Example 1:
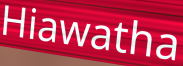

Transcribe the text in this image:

Hiawatha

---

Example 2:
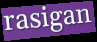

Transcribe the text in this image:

rasigan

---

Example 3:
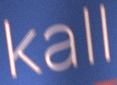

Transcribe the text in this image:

kall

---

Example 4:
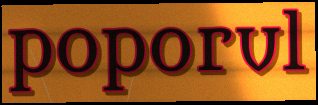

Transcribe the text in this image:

poporul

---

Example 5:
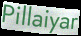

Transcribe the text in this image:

Pillaiyar